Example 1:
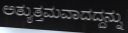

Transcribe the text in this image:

ಅತ್ಯುತ್ತಮವಾದದ್ದನ್ನು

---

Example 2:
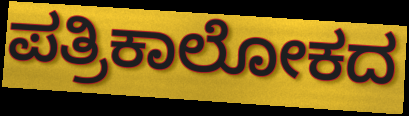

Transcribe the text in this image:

ಪತ್ರಿಕಾಲೋಕದ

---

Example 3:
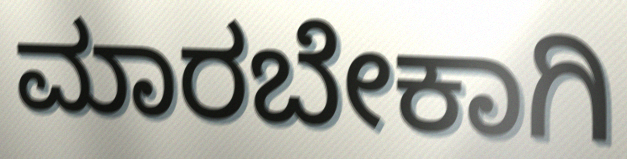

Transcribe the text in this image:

ಮಾರಬೇಕಾಗಿ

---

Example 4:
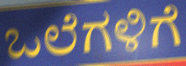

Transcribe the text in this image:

ಒಲೆಗಳಿಗೆ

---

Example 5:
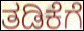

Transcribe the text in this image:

ತಡಿಕೆಗೆ